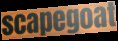
scapegoat